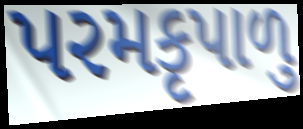
પરમકૃપાળુ